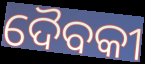
ଦୈବକୀ